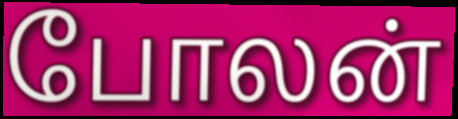
போலன்